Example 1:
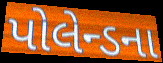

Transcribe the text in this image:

પોલેન્ડના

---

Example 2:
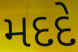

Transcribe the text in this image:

મદદે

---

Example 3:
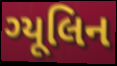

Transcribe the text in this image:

ગ્યૂલિન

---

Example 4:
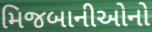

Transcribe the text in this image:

મિજબાનીઓનો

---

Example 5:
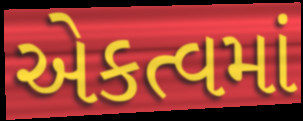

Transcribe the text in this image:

એકત્વમાં